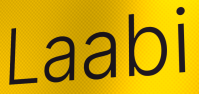
Laabi